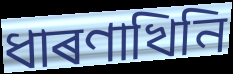
ধাৰণাখিনি